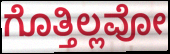
ಗೊತ್ತಿಲ್ಲವೋ